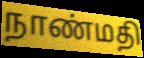
நாண்மதி